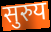
सुरुय